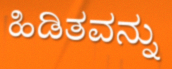
ಹಿಡಿತವನ್ನು